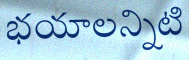
భయాలన్నిటి